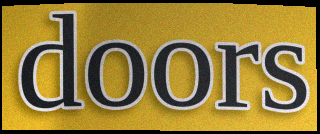
doors